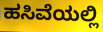
ಹಸಿವೆಯಲ್ಲಿ